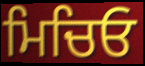
ਮਿਚਿਓ